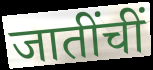
जातींचीं